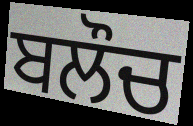
ਬਲੌਚ